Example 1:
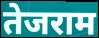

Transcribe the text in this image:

तेजराम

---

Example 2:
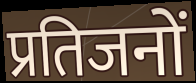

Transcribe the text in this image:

प्रतिजनों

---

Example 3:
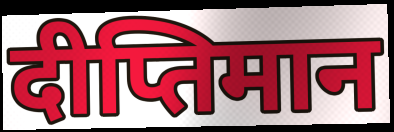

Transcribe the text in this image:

दीप्तिमान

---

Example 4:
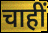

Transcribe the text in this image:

चाहीं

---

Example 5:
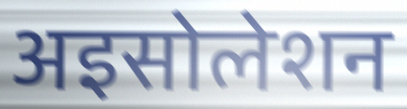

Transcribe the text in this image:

अइसोलेशन